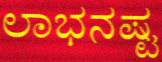
ಲಾಭನಷ್ಟ